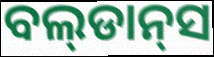
ବଲ୍‌ଡାନ୍‌ସ